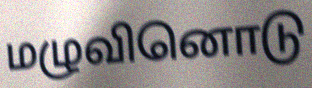
மழுவினொடு